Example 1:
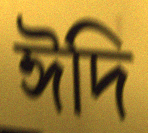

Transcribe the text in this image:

ঈদি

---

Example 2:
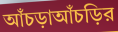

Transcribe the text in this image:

আঁচড়াআঁচড়ির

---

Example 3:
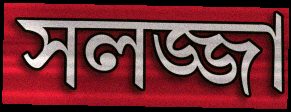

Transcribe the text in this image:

সলজ্জা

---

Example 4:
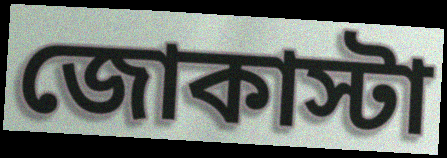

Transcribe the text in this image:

জোকাস্টা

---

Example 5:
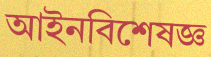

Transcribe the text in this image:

আইনবিশেষজ্ঞ